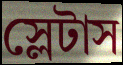
স্লেটাস